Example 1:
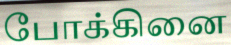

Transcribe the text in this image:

போக்கினை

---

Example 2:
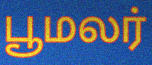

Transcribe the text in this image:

பூமலர்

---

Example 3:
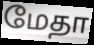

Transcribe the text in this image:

மேதா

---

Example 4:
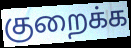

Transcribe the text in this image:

குறைக்க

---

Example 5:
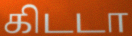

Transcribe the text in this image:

கிடடா